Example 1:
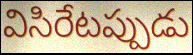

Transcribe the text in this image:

విసిరేటప్పుడు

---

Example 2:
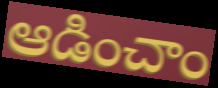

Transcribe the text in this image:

ఆడించాం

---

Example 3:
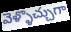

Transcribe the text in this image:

వెళ్ళొచ్చుగా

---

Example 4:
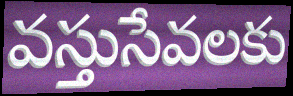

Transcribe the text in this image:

వస్తుసేవలకు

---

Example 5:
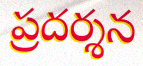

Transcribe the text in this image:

ప్రదర్శన